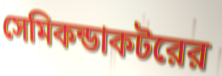
সেমিকন্ডাকটরের